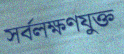
সর্বলক্ষণযুক্ত